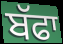
ਬੱਫਾ